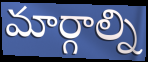
మార్గాల్ని